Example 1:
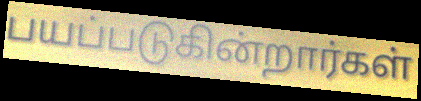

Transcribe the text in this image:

பயப்படுகின்றார்கள்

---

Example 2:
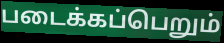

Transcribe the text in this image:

படைக்கப்பெறும்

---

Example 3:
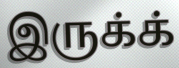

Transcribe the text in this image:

இருக்க்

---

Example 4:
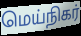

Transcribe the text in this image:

மெய்நிகர்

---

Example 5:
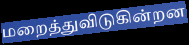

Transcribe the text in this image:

மறைத்துவிடுகின்றன